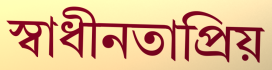
স্বাধীনতাপ্রিয়